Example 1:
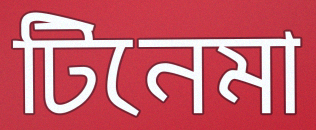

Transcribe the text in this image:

টিনেমা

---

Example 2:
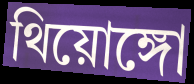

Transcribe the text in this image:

থিয়োঙ্গো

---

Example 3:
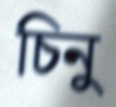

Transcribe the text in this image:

চিনু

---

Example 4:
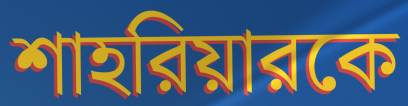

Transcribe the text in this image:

শাহরিয়ারকে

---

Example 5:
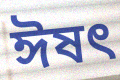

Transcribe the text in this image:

ঈষত্‍